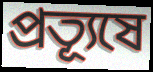
প্রত্যূষে